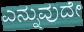
ಎನ್ನುವುದೇ